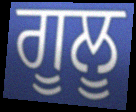
ਗੂਲੂ